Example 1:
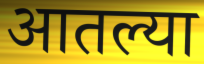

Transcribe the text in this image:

आतल्या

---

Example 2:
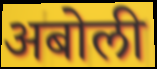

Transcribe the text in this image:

अबोली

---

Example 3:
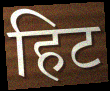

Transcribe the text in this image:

हिट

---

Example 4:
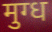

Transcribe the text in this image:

मुग्ध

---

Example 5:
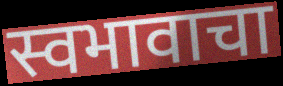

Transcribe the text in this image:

स्वभावाचा